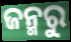
ଜନ୍ମରୁ